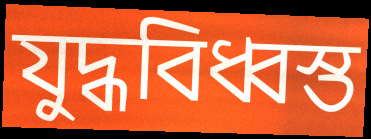
যুদ্ধবিধ্বস্ত